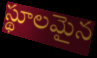
స్థూలమైన